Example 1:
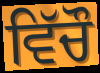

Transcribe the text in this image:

ਵਿੱਚੌ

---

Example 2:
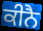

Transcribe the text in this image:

ਕੀਨੈ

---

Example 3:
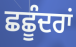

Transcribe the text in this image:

ਛਛੂੰਦਰਾਂ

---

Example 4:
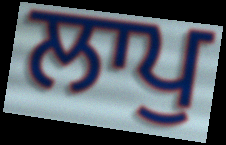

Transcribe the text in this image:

ਲਾਪੁ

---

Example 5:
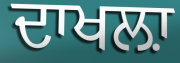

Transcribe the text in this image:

ਦਾਖਲ਼ਾ